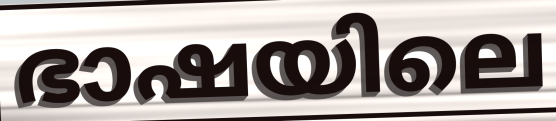
ഭാഷയിലെ